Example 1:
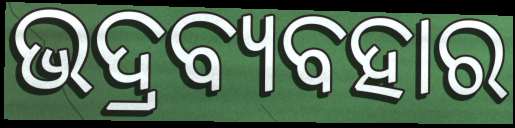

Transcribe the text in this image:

ଭଦ୍ରବ୍ୟବହାର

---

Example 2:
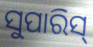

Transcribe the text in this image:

ସୁପାରିସ୍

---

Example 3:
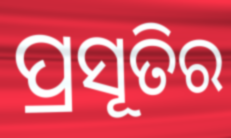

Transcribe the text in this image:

ପ୍ରସୂତିର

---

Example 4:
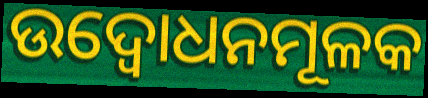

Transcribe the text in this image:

ଉଦ୍ବୋଧନମୂଳକ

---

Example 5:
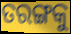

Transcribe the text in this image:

ତରଙ୍ଗକୁ